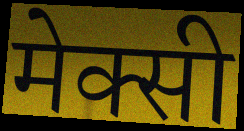
मेक्सी